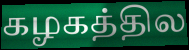
கழகத்தில